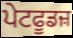
ਪੇਟਫੂਡਜ਼